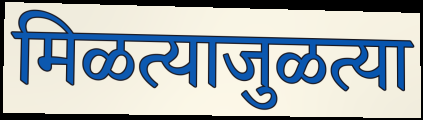
मिळत्याजुळत्या